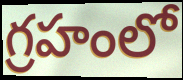
గ్రహంలో